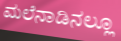
ಮಲೆನಾಡಿನಲ್ಲೂ